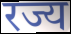
रज्य